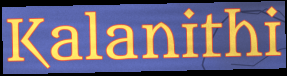
Kalanithi